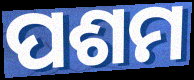
ପଶମ